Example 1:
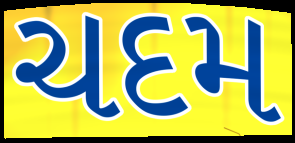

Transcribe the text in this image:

ચદમ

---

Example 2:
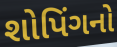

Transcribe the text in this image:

શોપિંગનો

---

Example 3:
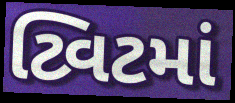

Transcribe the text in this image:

ટ્વિટમાં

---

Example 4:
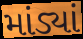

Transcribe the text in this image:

માંડ્યાં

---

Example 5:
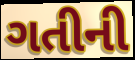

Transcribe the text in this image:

ગતીની